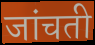
जांचती